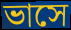
ভাসে